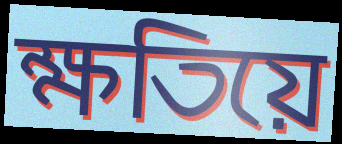
ক্ষতিয়ে